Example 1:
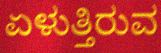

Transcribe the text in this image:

ಏಳುತ್ತಿರುವ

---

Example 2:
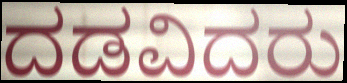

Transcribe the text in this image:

ದಡವಿದರು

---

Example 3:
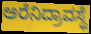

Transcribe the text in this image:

ಅರೆನಿದ್ರಾವಸ್ಥೆ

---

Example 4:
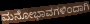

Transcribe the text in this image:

ಮನೋಭಾವಗಳಿಂದಾಗಿ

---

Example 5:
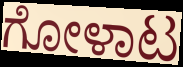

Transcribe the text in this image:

ಗೋಳಾಟ